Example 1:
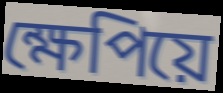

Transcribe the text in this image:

ক্ষেপিয়ে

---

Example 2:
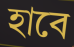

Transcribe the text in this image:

হাবে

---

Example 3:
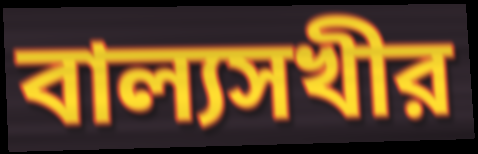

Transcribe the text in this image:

বাল্যসখীর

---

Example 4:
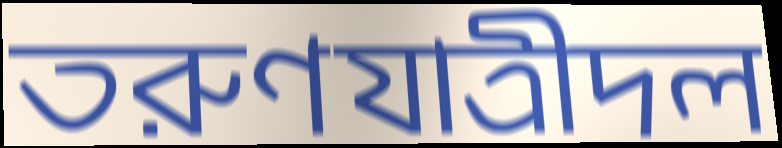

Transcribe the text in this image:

তরুণযাত্রীদল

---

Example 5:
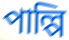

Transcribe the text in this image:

পাল্পি